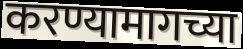
करण्यामागच्या